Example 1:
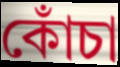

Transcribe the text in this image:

কোঁচা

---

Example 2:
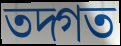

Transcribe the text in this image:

তদ্গত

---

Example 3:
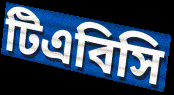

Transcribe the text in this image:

টিএবিসি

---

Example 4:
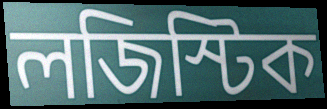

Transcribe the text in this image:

লজিস্টিক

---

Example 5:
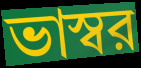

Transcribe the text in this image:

ভাস্বর